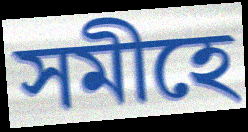
সমীহে